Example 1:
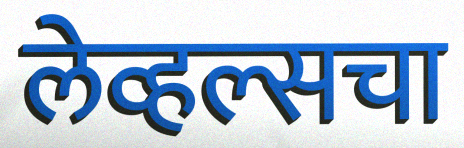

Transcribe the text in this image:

लेव्हल्सचा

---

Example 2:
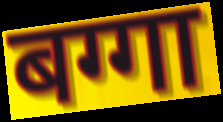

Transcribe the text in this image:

बग्गा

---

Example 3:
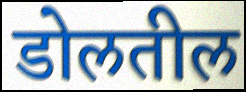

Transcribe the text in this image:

डोलतील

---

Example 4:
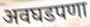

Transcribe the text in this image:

अवघडपणा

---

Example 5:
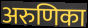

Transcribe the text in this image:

अरुणिका